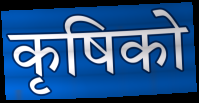
कृषिको